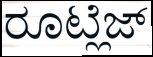
ರೂಟ್ಲೆಜ್